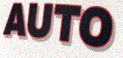
AUTO